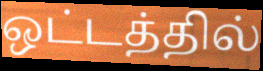
ஒட்டத்தில்